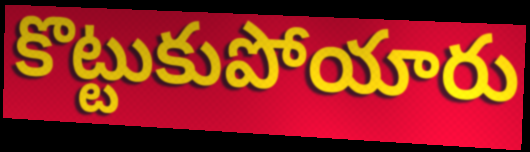
కొట్టుకుపోయారు